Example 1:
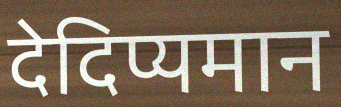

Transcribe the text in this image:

देदिप्यमान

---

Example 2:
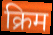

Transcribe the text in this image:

क्रिम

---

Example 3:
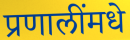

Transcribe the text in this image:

प्रणालींमधे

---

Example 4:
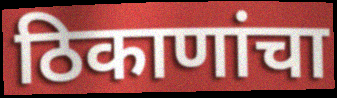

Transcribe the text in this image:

ठिकाणांचा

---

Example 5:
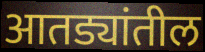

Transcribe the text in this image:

आतड्यांतील